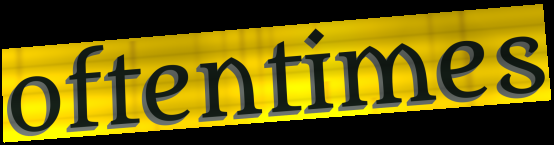
oftentimes